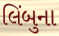
લિંબુના